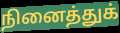
நினைத்துக்